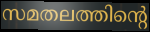
സമതലത്തിന്റെ